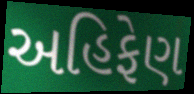
અહિફેણ